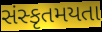
સંસ્કૃતમયતા